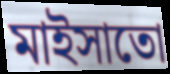
মাইসাতো